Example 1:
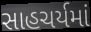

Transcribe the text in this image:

સાહચર્યમાં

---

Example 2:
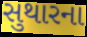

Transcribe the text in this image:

સુથારના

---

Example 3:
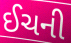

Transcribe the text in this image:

ઈચની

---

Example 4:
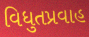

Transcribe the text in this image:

વિધુતપ્રવાહ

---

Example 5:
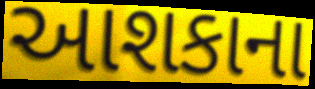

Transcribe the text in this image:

આશકાના